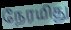
நேரமிது